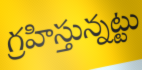
గ్రహిస్తున్నట్టు